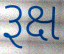
રૂક્ષ